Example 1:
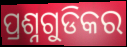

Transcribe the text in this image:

ପ୍ରଶ୍ନଗୁଡିକର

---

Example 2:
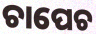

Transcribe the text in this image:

ଚାପେଚ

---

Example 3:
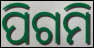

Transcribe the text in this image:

ପିଗମି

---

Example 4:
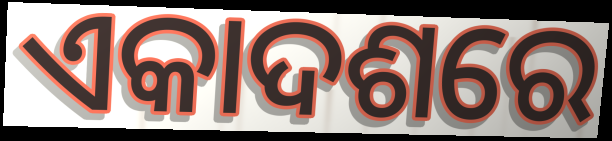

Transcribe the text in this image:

ଏକାଦଶରେ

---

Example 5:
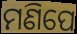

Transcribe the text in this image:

ମଣିପେ